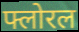
फ्लोरल